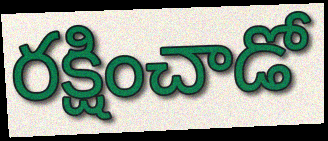
రక్షించాడో